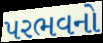
પરભવનો